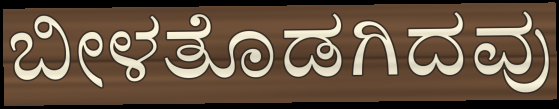
ಬೀಳತೊಡಗಿದವು